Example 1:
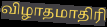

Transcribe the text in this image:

விழாதமாதிரி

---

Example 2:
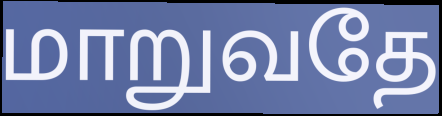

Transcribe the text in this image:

மாறுவதே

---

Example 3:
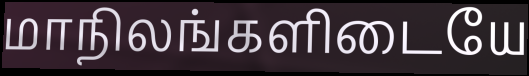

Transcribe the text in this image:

மாநிலங்களிடையே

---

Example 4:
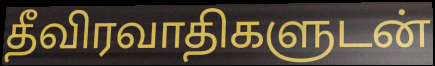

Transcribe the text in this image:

தீவிரவாதிகளுடன்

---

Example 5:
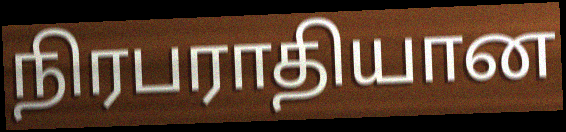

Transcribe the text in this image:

நிரபராதியான